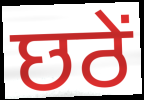
छठें